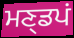
ਮਣ੍ਡਪਂ